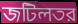
জটিলতর